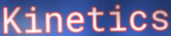
Kinetics